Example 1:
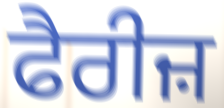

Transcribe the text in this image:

ਫੈਰੀਜ਼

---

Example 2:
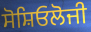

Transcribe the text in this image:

ਸੋਸ਼ਿਓਲੋਜੀ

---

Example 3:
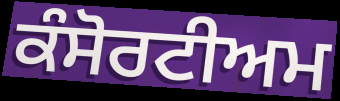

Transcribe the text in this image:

ਕੰਸੋਰਟੀਅਮ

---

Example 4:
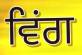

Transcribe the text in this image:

ਵਿਂਗ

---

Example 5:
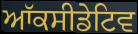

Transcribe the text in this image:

ਆੱਕਸੀਡੇਟਿਵ